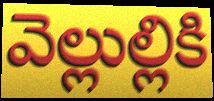
వెల్లుల్లికి